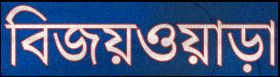
বিজয়ওয়াড়া